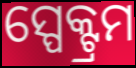
ସ୍ପେକ୍ଟ୍ରମ